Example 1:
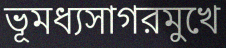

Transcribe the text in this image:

ভূমধ্যসাগরমুখে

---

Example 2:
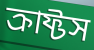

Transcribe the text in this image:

ক্রাফ্টস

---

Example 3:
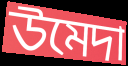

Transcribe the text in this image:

উমেদা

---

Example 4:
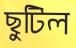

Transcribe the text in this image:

ছুটিল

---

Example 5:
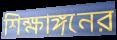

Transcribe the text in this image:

শিক্ষাঙ্গনের